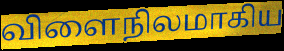
விளைநிலமாகிய